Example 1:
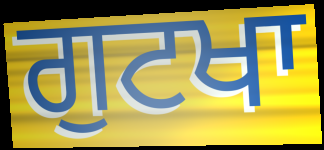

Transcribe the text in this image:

ਗੁਟਖਾ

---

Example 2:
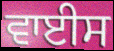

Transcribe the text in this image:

ਵਾਈਸ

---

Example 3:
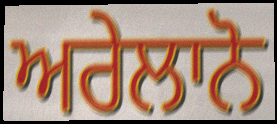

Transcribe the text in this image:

ਅਰੇਲਾਨੋ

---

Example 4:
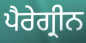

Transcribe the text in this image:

ਪੈਰੇਗ੍ਰੀਨ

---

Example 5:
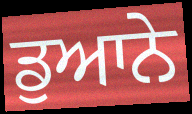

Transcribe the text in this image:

ਡੁਆਨੇ